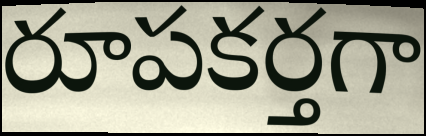
రూపకర్తగా